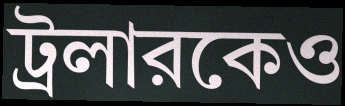
ট্রলারকেও